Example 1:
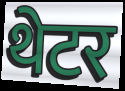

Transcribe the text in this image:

थेटर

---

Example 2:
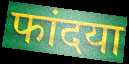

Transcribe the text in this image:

फांदया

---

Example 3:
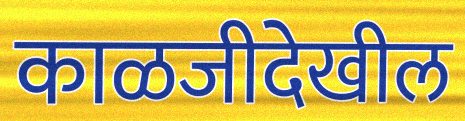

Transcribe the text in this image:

काळजीदेखील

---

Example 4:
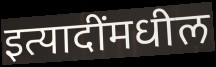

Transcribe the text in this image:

इत्यादींमधील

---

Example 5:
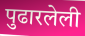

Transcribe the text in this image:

पुढारलेली